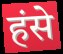
हंसे